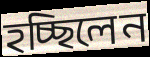
হচ্ছিলেন